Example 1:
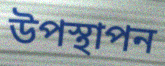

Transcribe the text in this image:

উপস্থাপন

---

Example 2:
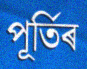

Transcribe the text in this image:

পূৰ্তিৰ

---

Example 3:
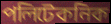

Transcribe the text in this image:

পলিটেকনিক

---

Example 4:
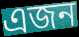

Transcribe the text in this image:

এজন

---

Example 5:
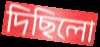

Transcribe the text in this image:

দিছিলো